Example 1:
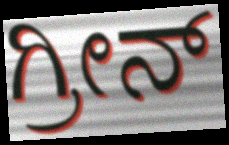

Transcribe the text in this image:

ಗ್ರೀನ್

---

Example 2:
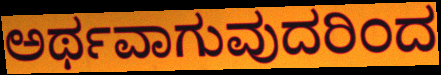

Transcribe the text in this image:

ಅರ್ಥವಾಗುವುದರಿಂದ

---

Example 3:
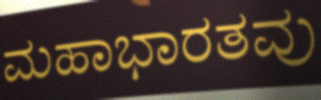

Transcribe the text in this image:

ಮಹಾಭಾರತವು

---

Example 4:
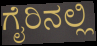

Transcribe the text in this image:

ಗೈರಿನಲ್ಲಿ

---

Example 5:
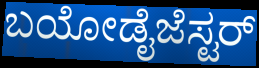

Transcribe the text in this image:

ಬಯೋಡೈಜೆಸ್ಟರ್